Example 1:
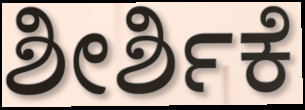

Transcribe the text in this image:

ಶೀರ್ಶಿಕೆ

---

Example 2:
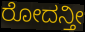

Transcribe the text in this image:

ರೋದನ್ತೀ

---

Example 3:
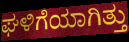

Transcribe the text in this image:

ಘಳಿಗೆಯಾಗಿತ್ತು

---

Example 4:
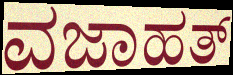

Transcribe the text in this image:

ವಜಾಹತ್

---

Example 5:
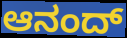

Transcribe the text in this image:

ಆನಂದ್